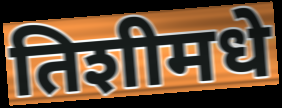
तिशीमधे